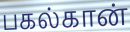
பகல்கான்